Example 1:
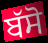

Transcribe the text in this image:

ਬੱਸੋ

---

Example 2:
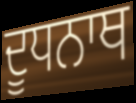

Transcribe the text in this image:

ਦੂਧਨਾਥ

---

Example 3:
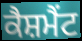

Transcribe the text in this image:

ਕੈਸ਼ਮੈਂਟ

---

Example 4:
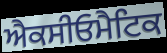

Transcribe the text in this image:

ਐਕਸੀਓਮੈਟਿਕ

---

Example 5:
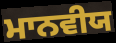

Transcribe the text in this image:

ਮਾਨਵੀਯ